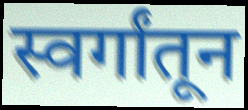
स्वर्गांतून